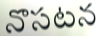
నొసటన